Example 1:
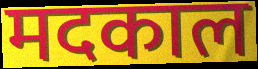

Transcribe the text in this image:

मदकाल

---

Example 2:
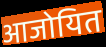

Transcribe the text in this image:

आजोयित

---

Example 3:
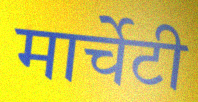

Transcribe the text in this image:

मार्चेटी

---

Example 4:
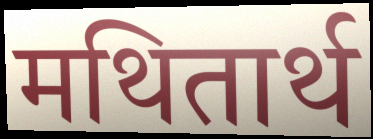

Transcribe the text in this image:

मथितार्थ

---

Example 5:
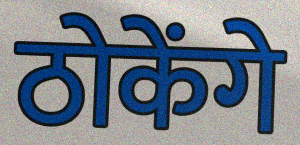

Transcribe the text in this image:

ठोकेंगे